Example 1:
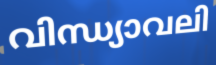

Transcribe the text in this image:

വിന്ധ്യാവലി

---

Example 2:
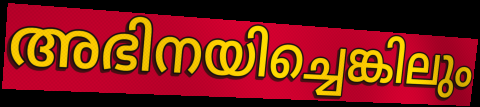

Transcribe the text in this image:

അഭിനയിച്ചെങ്കിലും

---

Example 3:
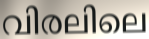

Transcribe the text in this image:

വിരലിലെ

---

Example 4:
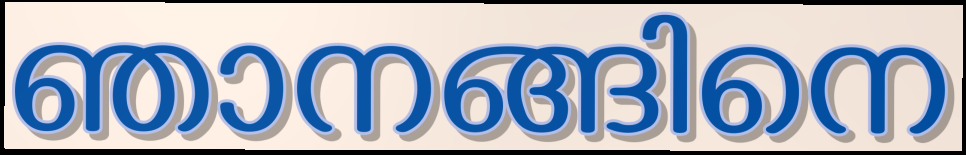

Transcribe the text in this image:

ഞാനങ്ങിനെ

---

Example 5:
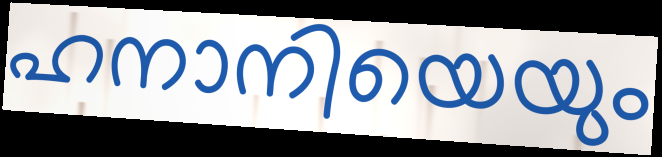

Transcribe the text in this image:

ഹനാനിയെയും